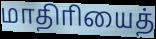
மாதிரியைத்